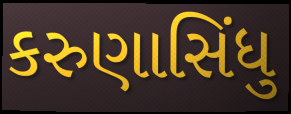
કરુણાસિંધુ